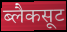
ब्लैकसूट